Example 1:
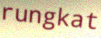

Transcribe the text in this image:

rungkat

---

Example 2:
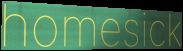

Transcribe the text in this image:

homesick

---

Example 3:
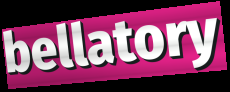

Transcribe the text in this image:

bellatory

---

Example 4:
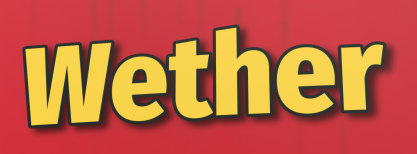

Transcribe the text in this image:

Wether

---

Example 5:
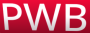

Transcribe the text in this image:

PWB